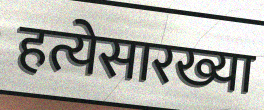
हत्येसारख्या